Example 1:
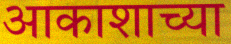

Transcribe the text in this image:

आकाशाच्या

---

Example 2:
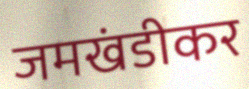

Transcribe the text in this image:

जमखंडीकर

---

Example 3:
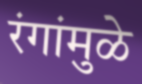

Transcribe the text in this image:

रंगांमुळे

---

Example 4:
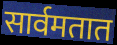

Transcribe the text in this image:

सार्वमतात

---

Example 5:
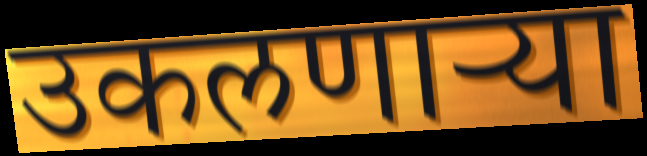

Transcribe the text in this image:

उकलणाऱ्या